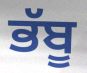
ਭੱਬੂ